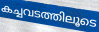
കച്ചവടത്തിലൂടെ